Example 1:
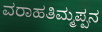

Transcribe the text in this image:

ವರಾಹತಿಮ್ಮಪ್ಪನ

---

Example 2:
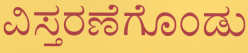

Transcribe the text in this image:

ವಿಸ್ತರಣೆಗೊಂಡು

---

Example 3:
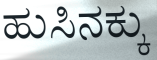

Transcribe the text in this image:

ಹುಸಿನಕ್ಕು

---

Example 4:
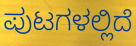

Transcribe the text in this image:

ಪುಟಗಳಲ್ಲಿದೆ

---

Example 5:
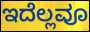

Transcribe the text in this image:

ಇದೆಲ್ಲವೂ